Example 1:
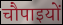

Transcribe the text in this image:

चौपाइयों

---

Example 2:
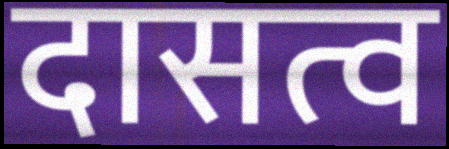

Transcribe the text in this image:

दासत्व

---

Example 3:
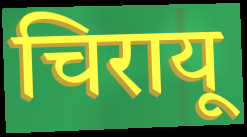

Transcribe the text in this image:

चिरायू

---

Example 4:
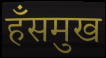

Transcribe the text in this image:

हँसमुख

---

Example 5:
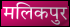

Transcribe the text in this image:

मलिकपुर